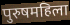
पुरुषमहिला